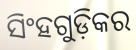
ସିଂହଗୁଡ଼ିକର